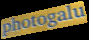
photogalu